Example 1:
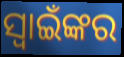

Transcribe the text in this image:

ସ୍ଵାଇଁଙ୍କର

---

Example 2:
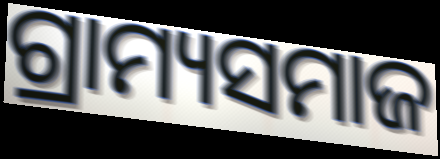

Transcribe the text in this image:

ଗ୍ରାମ୍ୟସମାଜ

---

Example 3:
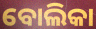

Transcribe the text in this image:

ବୋଲିକା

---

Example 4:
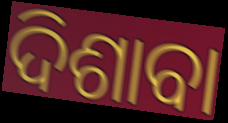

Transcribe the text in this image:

ଦିଶାବା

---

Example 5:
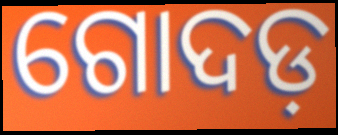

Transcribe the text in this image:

ଗୋଦଡ଼